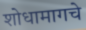
शोधामागचे